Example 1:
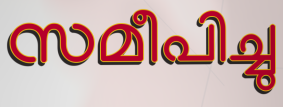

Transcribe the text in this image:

സമീപിച്ചു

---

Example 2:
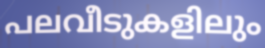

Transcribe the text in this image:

പലവീടുകളിലും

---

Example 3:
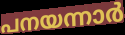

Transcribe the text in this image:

പനയന്നാർ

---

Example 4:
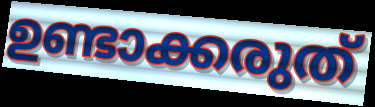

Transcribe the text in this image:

ഉണ്ടാക്കരുത്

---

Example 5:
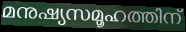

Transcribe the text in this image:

മനുഷ്യസമൂഹത്തിന്